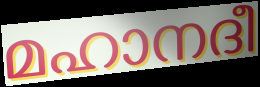
മഹാനദീ